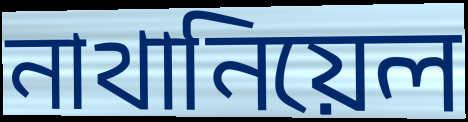
নাথানিয়েল